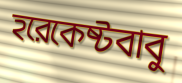
হরেকেষ্টবাবু